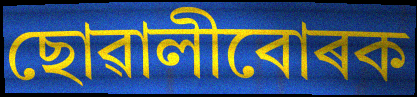
ছোৱালীবোৰক